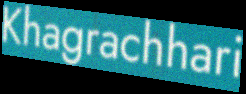
Khagrachhari